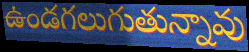
ఉండగలుగుతున్నావు